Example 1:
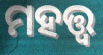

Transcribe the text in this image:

ମହତ୍ତ୍ବ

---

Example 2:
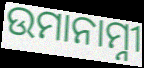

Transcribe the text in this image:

ଉମାନାମ୍ନୀ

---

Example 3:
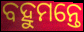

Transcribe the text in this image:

ବହୁମନ୍ତେ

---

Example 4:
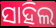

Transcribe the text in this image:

ସାହିଲ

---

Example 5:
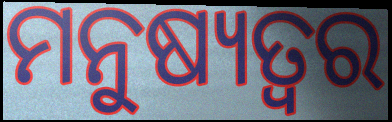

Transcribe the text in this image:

ମନୁଷ୍ୟତ୍ବର